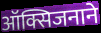
ऑक्सिजनाने